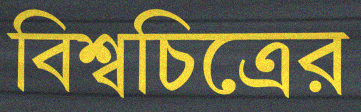
বিশ্বচিত্রের